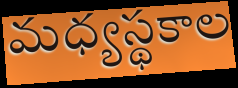
మధ్యస్థకాల